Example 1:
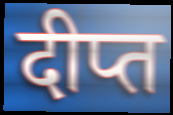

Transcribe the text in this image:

दीप्त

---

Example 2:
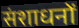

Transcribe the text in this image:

संशाधनों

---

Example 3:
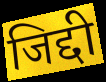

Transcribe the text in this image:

जिद्दी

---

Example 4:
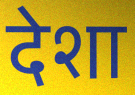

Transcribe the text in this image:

देशा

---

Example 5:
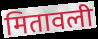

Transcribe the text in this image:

मितावली